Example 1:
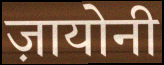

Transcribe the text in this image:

ज़ायोनी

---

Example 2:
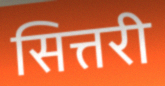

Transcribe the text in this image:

सित्तरी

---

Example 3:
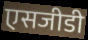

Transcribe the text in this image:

एसजीडी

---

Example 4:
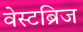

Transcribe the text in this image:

वेस्टब्रिज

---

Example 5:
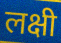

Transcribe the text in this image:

लक्षी